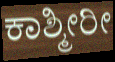
ಕಾಶ್ಮೀರೀ